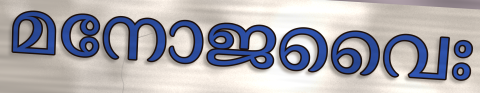
മനോജവൈഃ